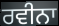
ਰਵੀਨਾ